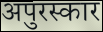
अपुरस्कार